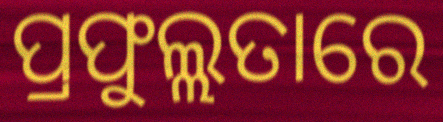
ପ୍ରଫୁଲ୍ଲତାରେ